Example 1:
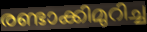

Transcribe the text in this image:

രണ്ടാക്കിമുറിച്ച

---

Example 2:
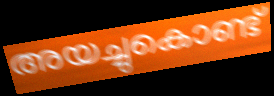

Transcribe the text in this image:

അയച്ചുകൊണ്ട്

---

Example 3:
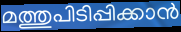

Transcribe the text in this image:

മത്തുപിടിപ്പിക്കാൻ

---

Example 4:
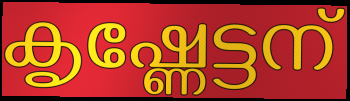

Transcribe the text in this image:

കൃഷ്ണേട്ടന്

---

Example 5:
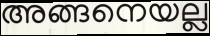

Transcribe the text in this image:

അങ്ങനെയല്ല